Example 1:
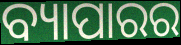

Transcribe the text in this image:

ବ୍ୟାପାରର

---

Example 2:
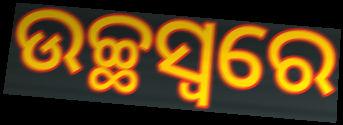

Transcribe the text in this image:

ଉଚ୍ଛସ୍ୱରେ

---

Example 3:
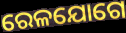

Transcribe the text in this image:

ରେଳଯୋଗେ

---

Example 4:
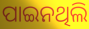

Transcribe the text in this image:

ପାଇନଥିଲି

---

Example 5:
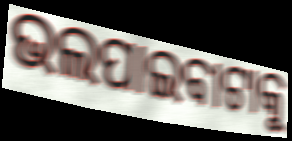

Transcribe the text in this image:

ଭଲପାଇବାଟାକୁ